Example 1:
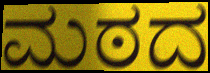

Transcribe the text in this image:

ಮಠದ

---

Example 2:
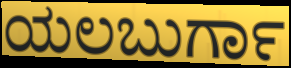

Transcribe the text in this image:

ಯಲಬುರ್ಗಾ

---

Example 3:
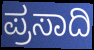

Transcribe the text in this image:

ಪ್ರಸಾದಿ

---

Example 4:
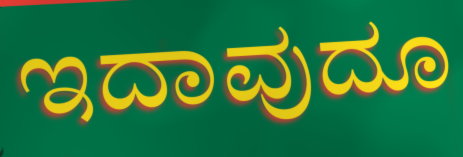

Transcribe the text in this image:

ಇದಾವುದೂ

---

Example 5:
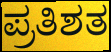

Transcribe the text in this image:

ಪ್ರತಿಶತ